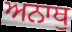
ਅਨਾਥੁ